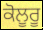
ਕੋਲੂਰੂ